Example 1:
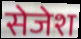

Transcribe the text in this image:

सेजेश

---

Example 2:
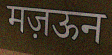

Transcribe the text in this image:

मज़ऊन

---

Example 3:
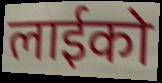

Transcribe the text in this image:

लाईको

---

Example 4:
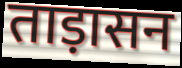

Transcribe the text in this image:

ताड़ासन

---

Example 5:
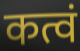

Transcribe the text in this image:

कत्वं